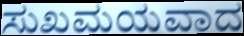
ಸುಖಮಯವಾದ